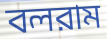
বলরাম